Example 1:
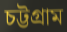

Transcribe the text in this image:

চট্টগ্রাম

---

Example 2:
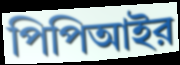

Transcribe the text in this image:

পিপিআইর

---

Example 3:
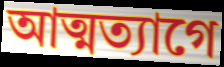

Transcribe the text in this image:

আত্মত্যাগে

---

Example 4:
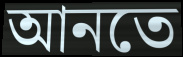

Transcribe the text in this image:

আনতে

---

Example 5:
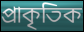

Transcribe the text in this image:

প্রাকৃতিক